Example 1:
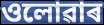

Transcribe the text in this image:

ওলোৱাৰ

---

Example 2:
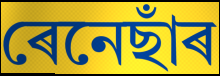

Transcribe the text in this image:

ৰেনেছাঁৰ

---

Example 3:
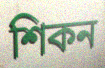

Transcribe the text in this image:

শিকন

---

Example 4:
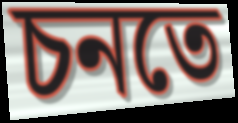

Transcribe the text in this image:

চনতে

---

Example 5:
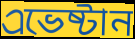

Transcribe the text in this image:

এভেষ্টান